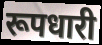
रूपधारी